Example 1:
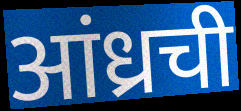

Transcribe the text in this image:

आंध्रची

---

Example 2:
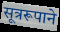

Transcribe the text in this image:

सूत्ररूपाने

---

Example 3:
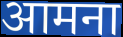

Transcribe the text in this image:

आमना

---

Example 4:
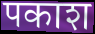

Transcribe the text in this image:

पकाश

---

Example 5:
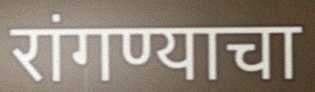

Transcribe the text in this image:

रांगण्याचा